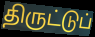
திருட்டுப்